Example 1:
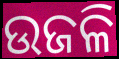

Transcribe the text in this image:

ଉଜଳି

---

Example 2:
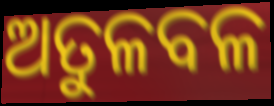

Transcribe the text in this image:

ଅତୁଳବଳ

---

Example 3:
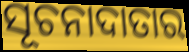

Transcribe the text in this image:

ସୂଚନାଦାତାର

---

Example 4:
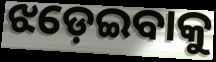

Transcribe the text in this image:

ଝଡ଼େଇବାକୁ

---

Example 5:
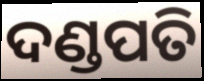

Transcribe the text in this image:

ଦଣ୍ଡପତି